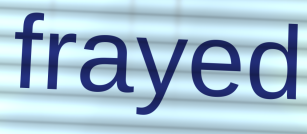
frayed